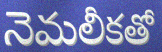
నెమలీకతో